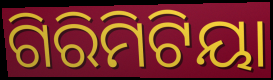
ଗିରିମିଟିୟା